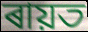
ৰায়ত